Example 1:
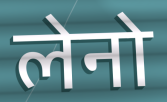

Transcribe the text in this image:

लेनो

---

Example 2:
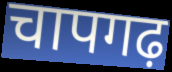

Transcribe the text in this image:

चापगढ़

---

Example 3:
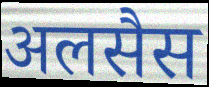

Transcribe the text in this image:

अलसैस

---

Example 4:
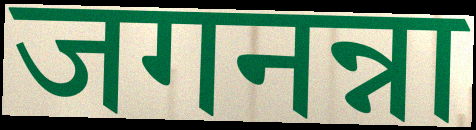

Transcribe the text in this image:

जगनन्ना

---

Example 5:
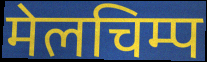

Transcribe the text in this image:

मेलचिम्प